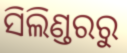
ସିଲିଣ୍ଡରରୁ